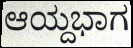
ಆಯ್ದಭಾಗ